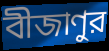
বীজাণুর